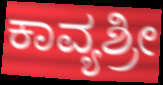
ಕಾವ್ಯಶ್ರೀ